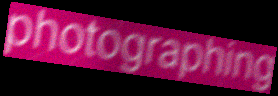
photographing